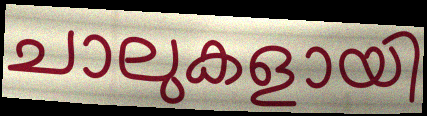
ചാലുകളായി